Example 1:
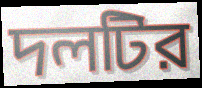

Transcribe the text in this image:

দলটির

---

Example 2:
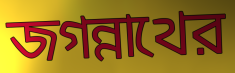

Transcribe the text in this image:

জগন্নাথের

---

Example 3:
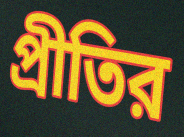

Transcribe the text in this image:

প্রীতির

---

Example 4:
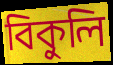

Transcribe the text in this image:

বিকুলি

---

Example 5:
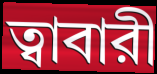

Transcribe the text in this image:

ত্বাবারী